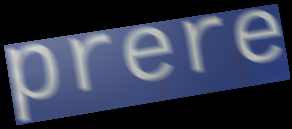
prere